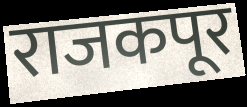
राजकपूर